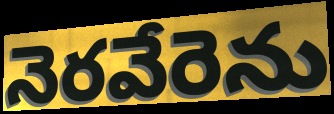
నెరవేరెను